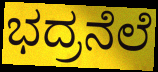
ಭದ್ರನೆಲೆ